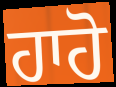
ਹਾਹੋ